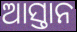
ଆସ୍ତାନ